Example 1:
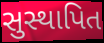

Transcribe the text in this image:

સુસ્થાપિત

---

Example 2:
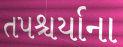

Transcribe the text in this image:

તપશ્ચર્યાના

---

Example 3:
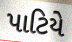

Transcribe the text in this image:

પાટિયે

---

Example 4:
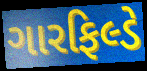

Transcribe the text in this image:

ગારફિલ્ડે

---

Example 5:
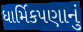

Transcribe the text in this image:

ધાર્મિકપણાનું